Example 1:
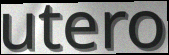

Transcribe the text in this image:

utero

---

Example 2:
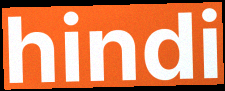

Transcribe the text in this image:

hindi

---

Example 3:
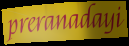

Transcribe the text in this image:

preranadayi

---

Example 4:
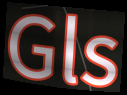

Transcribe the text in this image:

Gls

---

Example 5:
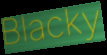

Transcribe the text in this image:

Blacky